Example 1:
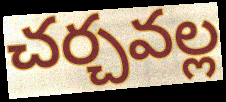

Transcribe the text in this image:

చర్చవల్ల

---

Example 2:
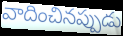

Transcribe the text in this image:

వాదించినప్పుడు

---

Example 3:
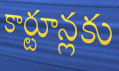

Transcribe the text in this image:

కార్టూన్లకు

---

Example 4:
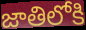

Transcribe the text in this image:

జాతిలోకి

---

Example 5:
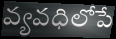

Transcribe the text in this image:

వ్యవధిలోపే